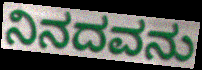
ನಿನದವನು